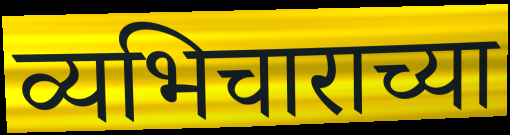
व्यभिचाराच्या